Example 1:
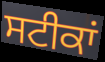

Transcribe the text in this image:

ਸਟੀਕਾਂ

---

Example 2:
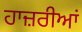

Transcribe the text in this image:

ਹਾਜ਼ਰੀਆਂ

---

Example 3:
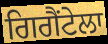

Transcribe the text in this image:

ਗਿਗੈਂਟੇਲਾ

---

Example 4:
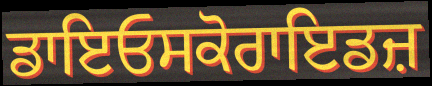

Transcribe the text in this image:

ਡਾਇਓਸਕੋਰਾਇਡਜ਼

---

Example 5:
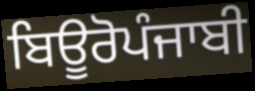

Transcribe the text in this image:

ਬਿਊਰੋਪੰਜਾਬੀ